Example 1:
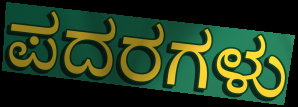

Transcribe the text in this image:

ಪದರಗಳು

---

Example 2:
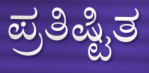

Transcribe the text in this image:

ಪ್ರತಿಷ್ಟಿತ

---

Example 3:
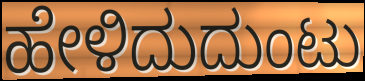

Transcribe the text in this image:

ಹೇಳಿದುದುಂಟು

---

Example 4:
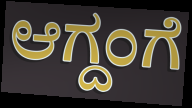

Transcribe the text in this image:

ಆಗ್ದಂಗೆ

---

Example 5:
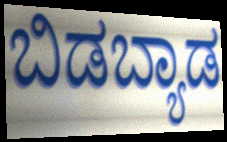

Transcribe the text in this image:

ಬಿಡಬ್ಯಾಡ